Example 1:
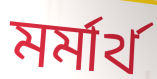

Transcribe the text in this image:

মর্মার্থ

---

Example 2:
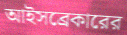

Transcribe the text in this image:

আইসব্রেকারের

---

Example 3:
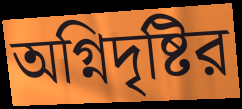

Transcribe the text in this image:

অগ্নিদৃষ্টির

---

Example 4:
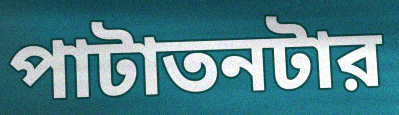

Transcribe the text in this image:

পাটাতনটার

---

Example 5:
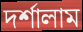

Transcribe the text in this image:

দর্শালাম